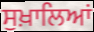
ਸੁਖ਼ਾਲਿਆਂ